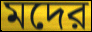
মদের